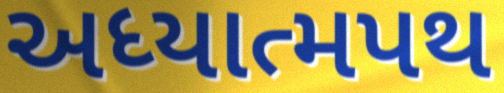
અધ્યાત્મપથ